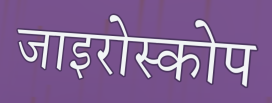
जाइरोस्कोप